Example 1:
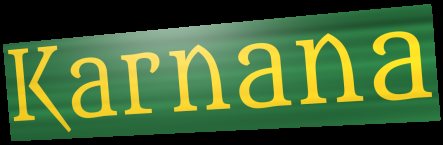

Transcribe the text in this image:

Karnana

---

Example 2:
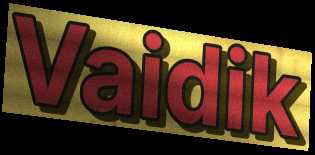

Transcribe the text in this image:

Vaidik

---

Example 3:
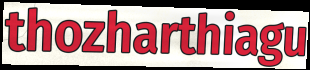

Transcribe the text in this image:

thozharthiagu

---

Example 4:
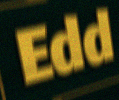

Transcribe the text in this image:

Edd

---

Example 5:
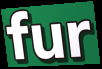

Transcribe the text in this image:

fur